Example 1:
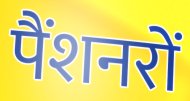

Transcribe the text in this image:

पैंशनरों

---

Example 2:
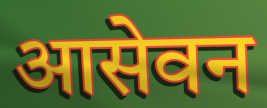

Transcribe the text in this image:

आसेवन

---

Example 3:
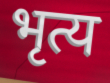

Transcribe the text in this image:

भृत्य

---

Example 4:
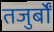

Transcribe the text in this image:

तजुर्बों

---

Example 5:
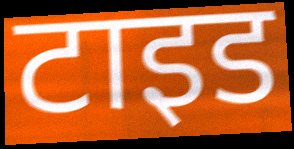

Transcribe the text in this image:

टाइड